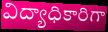
విద్యాధికారిగా